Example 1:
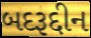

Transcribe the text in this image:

બદરૂદ્દીન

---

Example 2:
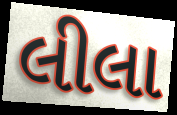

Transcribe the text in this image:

લીલા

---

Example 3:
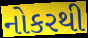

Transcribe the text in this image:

નોકરથી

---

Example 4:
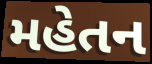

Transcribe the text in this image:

મહેતન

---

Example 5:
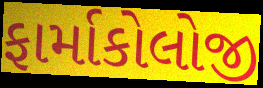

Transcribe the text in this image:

ફાર્માકોલોજી